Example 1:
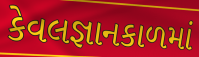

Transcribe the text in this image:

કેવલજ્ઞાનકાળમાં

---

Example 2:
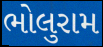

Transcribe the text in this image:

ભોલુરામ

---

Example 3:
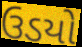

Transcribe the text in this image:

ઉડયો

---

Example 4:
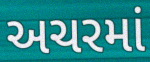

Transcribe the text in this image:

અચરમાં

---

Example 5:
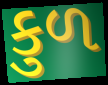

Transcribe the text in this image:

કુળ